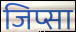
जिप्सा